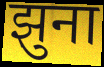
झुना